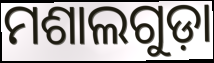
ମଶାଲଗୁଡ଼ା